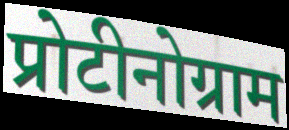
प्रोटीनोग्राम